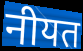
नीयत